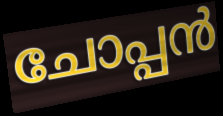
ചോപ്പൻ